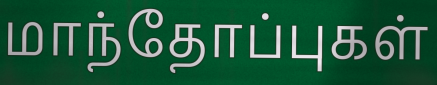
மாந்தோப்புகள்